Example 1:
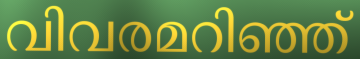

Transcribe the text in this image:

വിവരമറിഞ്ഞ്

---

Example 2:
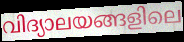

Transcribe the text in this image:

വിദ്യാലയങ്ങളിലെ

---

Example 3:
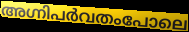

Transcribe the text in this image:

അഗ്നിപർവതംപോലെ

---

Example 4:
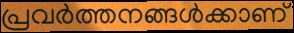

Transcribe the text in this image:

പ്രവർത്തനങ്ങൾക്കാണ്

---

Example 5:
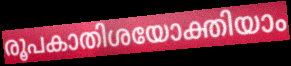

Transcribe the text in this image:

രൂപകാതിശയോക്തിയാം